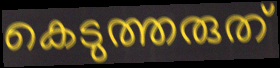
കെടുത്തരുത്